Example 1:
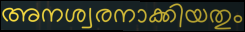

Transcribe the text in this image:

അനശ്വരനാക്കിയതും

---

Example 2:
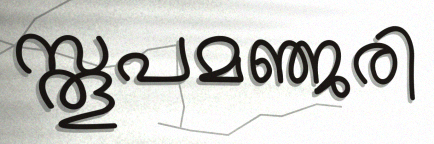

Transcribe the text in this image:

സ്തൂപമഞ്ജരി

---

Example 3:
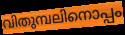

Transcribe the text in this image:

വിതുമ്പലിനൊപ്പം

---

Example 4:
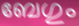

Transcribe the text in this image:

ബേഗും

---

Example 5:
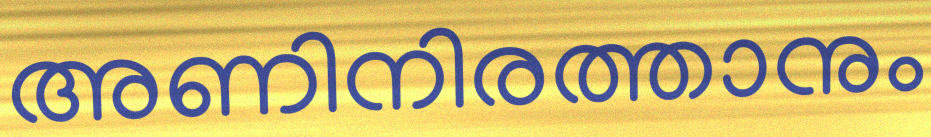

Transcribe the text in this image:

അണിനിരത്താനും